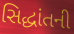
સિદ્ધાંતની